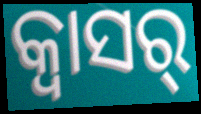
କ୍ୱାସର୍